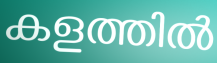
കളത്തിൽ